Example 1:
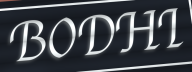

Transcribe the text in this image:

BODHI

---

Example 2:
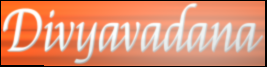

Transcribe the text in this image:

Divyavadana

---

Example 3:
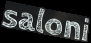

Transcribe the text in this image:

saloni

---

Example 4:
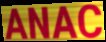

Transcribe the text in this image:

ANAC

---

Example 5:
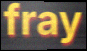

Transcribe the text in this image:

fray